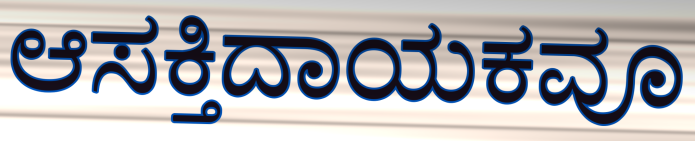
ಆಸಕ್ತಿದಾಯಕವೂ